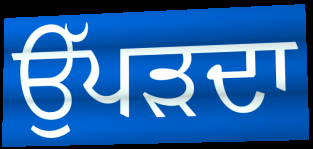
ਉੱਪੜਦਾ